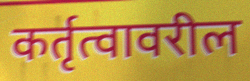
कर्तृत्वावरील